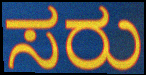
ಸರು